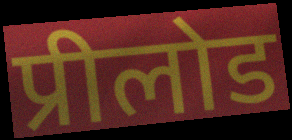
प्रीलोड